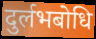
दुर्लभबोधि